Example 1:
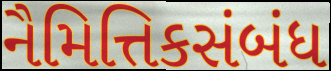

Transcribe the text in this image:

નૈમિત્તિકસંબંધ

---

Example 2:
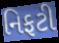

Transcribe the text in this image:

નિફટી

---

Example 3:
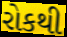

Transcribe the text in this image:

રોકથી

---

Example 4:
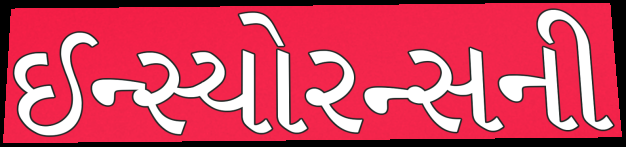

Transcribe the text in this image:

ઈન્સ્યોરન્સની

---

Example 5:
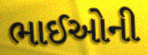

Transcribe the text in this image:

ભાઈઓની